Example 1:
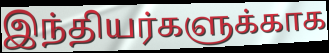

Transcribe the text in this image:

இந்தியர்களுக்காக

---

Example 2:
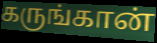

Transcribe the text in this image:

கருங்கான்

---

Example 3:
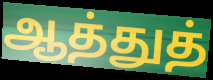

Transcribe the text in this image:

ஆத்துத்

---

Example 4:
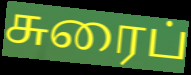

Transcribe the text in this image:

சுரைப்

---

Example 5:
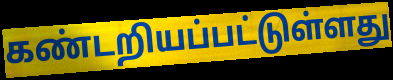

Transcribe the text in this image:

கண்டறியப்பட்டுள்ளது